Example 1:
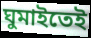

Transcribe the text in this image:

ঘুমাইতেই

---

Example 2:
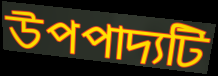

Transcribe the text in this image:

উপপাদ্যটি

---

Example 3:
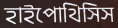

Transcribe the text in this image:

হাইপোথিসিস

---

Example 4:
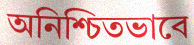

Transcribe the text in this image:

অনিশ্চিতভাবে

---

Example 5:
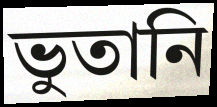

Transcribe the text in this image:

ভুতানি